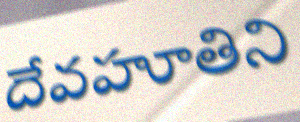
దేవహూతిని